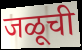
जळूची